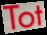
Tot